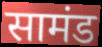
सामंड